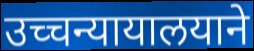
उच्चन्यायालयाने